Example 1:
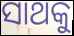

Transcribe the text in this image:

ସାଥକୁ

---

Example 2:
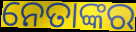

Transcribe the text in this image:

ନେତାଙ୍କର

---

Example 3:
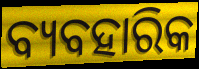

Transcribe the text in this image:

ବ୍ଯବହାରିକ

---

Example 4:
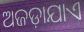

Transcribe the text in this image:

ଅଜଡ଼ାଯାଏ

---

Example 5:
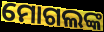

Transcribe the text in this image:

ମୋଗଲଙ୍କ